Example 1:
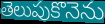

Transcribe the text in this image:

తెలుపుకొనెను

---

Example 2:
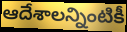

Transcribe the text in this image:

ఆదేశాలన్నింటికీ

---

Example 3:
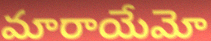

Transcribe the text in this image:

మారాయేమో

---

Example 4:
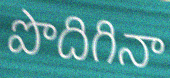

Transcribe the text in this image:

పొదిగినా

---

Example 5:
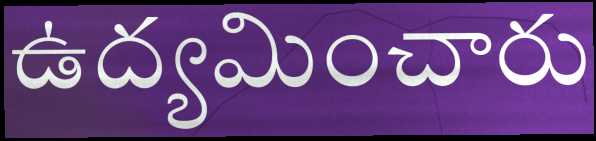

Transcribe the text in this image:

ఉద్యమించారు